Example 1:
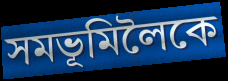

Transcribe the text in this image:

সমভূমিলৈকে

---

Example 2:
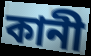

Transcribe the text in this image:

কানী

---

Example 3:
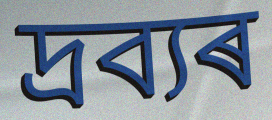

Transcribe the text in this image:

দ্ৰব্যৰ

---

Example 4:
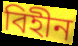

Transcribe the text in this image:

বিহীন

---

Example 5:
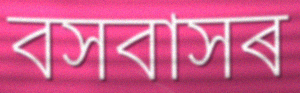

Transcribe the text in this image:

বসবাসৰ